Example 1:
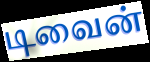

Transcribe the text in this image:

டிவைன்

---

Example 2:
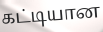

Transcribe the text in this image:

கட்டியான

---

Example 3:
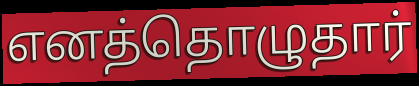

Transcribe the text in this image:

எனத்தொழுதார்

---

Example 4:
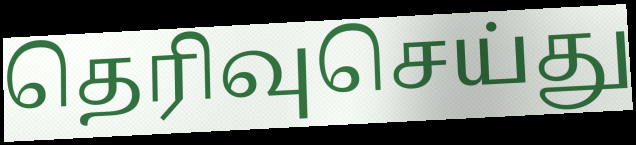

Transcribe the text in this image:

தெரிவுசெய்து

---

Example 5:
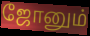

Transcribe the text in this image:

ஜோனும்